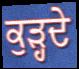
ਕੁੜ੍ਹਦੇ